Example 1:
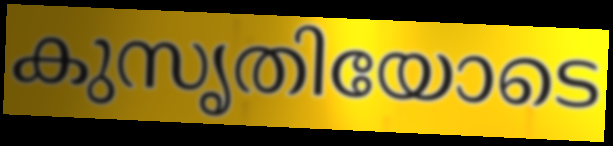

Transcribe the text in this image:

കുസൃതിയോടെ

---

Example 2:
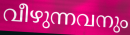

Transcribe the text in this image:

വീഴുന്നവനും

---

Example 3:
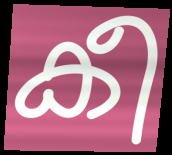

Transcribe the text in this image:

കീ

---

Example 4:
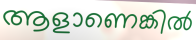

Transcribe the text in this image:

ആളാണെങ്കിൽ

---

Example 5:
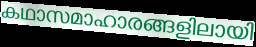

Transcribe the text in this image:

കഥാസമാഹാരങ്ങളിലായി